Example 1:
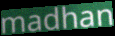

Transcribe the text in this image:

madhan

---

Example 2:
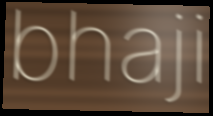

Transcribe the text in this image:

bhaji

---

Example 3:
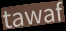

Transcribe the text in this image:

tawaf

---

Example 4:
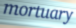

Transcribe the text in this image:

mortuary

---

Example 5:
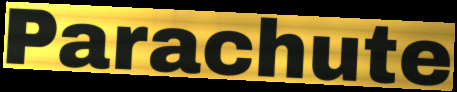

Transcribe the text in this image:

Parachute